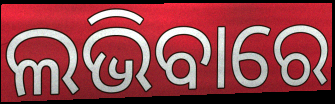
ଲଭିବାରେ